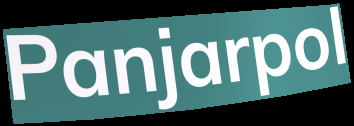
Panjarpol